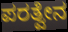
ಪರತ್ವೇನ